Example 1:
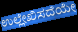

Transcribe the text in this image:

ಉಲ್ಲೇಖಿಸದೆಯೇ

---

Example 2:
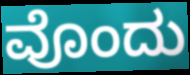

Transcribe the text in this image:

ವೊಂದು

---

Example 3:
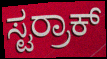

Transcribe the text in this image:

ಸ್ಟರ್ರಾಕ್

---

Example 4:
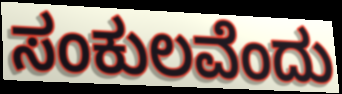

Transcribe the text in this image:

ಸಂಕುಲವೆಂದು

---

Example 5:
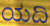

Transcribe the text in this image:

ಯದಿ